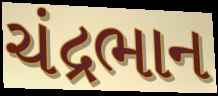
ચંદ્રભાન